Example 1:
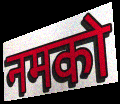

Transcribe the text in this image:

नमको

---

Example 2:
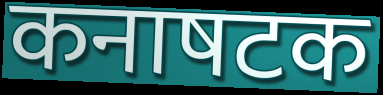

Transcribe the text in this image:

कनाषटक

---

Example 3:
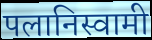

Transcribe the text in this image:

पलानिस्वामी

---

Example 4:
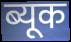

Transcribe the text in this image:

ब्यूक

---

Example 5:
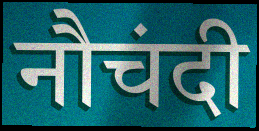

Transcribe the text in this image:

नौचंदी